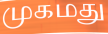
முகமது